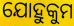
ଯୋହୁକୁମ